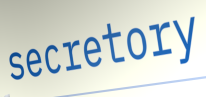
secretory